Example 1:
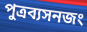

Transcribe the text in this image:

পুত্রব্যসনজং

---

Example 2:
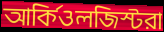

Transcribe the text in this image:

আর্কিওলজিস্টরা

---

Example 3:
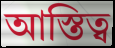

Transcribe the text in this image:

আস্তিত্ব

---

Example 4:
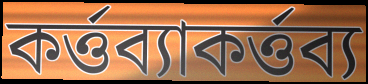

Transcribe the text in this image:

কর্ত্তব্যাকর্ত্তব্য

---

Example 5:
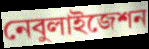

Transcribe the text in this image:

নেবুলাইজেশন